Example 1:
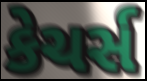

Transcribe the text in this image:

કેચર્સ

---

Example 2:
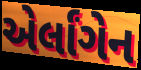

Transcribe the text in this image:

એર્લાંગેન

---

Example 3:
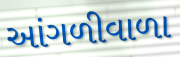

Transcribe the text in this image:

આંગળીવાળા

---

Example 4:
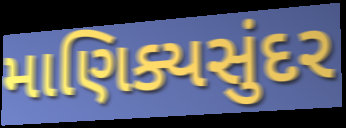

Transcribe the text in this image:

માણિક્યસુંદર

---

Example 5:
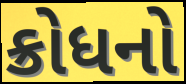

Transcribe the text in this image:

ક્રોધનો